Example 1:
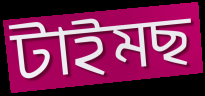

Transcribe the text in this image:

টাইমছ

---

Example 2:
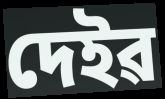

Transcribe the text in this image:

দেইৱ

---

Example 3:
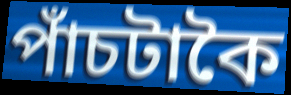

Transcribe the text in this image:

পাঁচটাকৈ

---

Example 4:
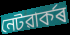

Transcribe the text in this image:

নেটৱাৰ্কৰ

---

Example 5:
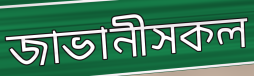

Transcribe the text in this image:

জাভানীসকল